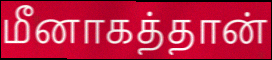
மீனாகத்தான்